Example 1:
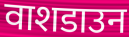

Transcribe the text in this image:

वाशडाउन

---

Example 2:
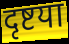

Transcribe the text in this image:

दृष्टया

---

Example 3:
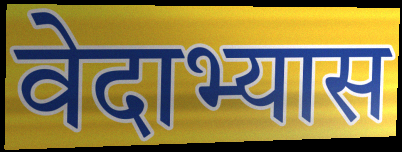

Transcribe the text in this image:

वेदाभ्यास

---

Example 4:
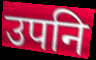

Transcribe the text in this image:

उपनि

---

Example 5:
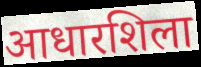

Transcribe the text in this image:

आधारशिला